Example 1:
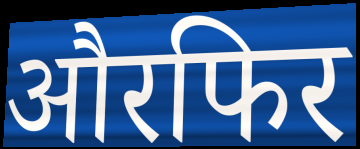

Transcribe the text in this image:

औरफिर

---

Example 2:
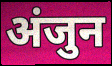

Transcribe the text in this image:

अंजुन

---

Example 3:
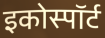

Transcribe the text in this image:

इकोस्पॉर्ट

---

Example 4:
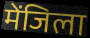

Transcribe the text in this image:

मेंजिला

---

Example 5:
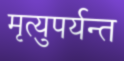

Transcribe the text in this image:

मृत्युपर्यन्त